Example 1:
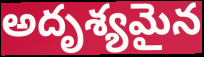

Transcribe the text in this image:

అదృశ్యమైన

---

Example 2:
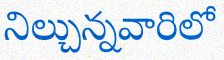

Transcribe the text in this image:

నిల్చున్నవారిలో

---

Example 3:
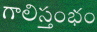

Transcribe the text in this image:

గాలిస్తంభం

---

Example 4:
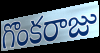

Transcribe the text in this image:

గొంకరాజు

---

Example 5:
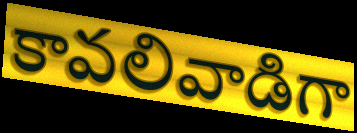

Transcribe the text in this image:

కావలివాడిగా